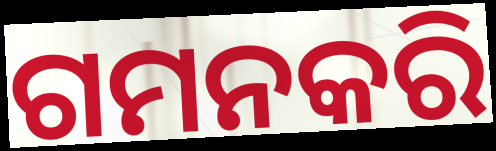
ଗମନକରି